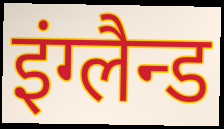
इंग्लैन्ड